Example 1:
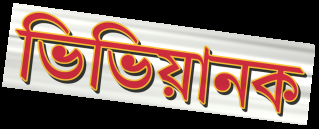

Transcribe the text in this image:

ভিভিয়ানক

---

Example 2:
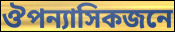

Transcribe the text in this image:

ঔপন্যাসিকজনে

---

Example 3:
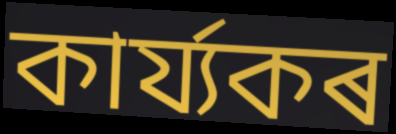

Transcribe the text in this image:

কাৰ্য্যকৰ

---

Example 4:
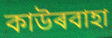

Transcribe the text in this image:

কাউৰবাহা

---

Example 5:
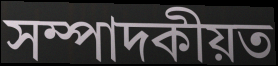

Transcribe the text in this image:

সম্পাদকীয়ত